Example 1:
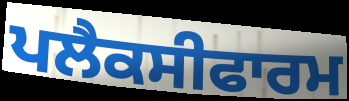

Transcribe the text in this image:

ਪਲੈਕਸੀਫਾਰਮ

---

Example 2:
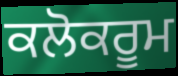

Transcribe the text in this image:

ਕਲੋਕਰੂਮ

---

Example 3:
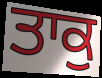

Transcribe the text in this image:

ਤਾਕੁ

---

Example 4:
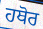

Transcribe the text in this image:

ਹਥੋਰ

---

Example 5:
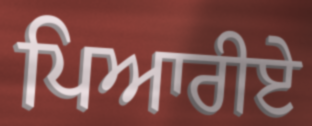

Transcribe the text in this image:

ਪਿਆਰੀਏ